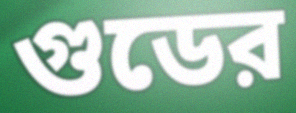
গুডের